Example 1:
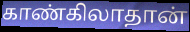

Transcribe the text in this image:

காண்கிலாதான்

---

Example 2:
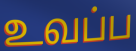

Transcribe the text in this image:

உவப்ப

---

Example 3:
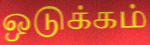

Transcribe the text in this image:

ஒடுக்கம்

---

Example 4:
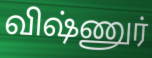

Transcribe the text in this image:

விஷ்ணுர்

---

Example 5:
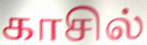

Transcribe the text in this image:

காசில்